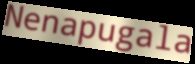
Nenapugala